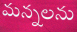
మన్నలను